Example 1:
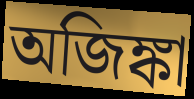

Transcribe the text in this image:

অজিঙ্কা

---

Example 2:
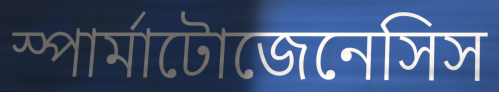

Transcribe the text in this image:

স্পার্মাটোজেনেসিস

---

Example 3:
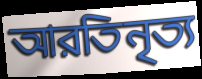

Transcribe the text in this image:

আরতিনৃত্য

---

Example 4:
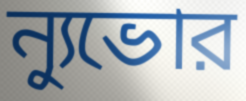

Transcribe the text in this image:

ন্যুভোর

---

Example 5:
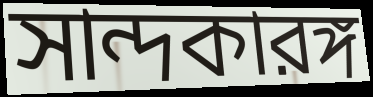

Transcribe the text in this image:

সান্দকারঙ্গ